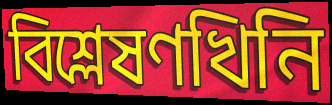
বিশ্লেষণখিনি